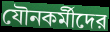
যৌনকর্মীদের